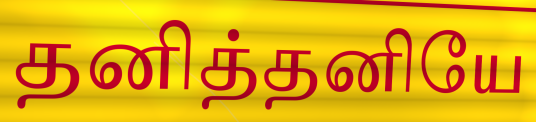
தனித்தனியே